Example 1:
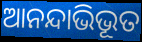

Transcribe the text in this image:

ଆନନ୍ଦାଭିଭୂତ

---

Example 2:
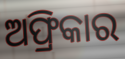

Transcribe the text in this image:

ଅଫ୍ରିକାର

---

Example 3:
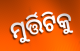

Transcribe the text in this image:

ମୁର୍ତ୍ତିଟିକୁ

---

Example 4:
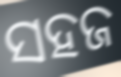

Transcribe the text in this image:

ସହଜ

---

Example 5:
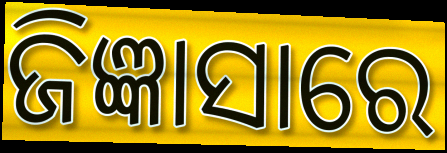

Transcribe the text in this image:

ଜିଜ୍ଞାସାରେ